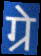
ग्रे